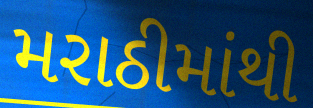
મરાઠીમાંથી